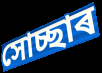
সোচ্ছাৰ